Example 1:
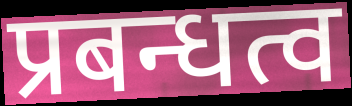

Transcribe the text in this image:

प्रबन्धत्व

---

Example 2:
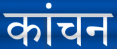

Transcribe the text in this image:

कांचन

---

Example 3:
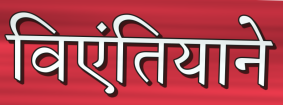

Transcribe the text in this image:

विएंतियाने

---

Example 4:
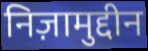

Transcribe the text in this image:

निज़ामुद्दीन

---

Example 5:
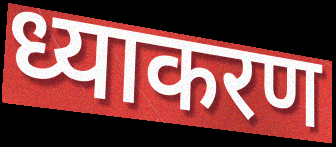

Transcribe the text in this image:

ध्याकरण